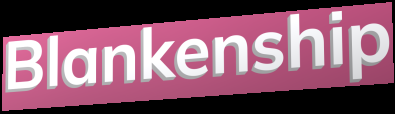
Blankenship